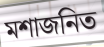
মশাজনিত